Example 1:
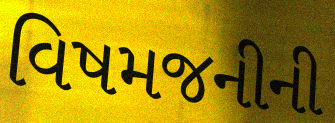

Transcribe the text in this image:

વિષમજનીની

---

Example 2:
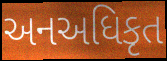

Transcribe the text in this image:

અનઅધિકૃત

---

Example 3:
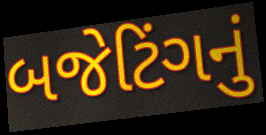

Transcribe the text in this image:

બજેટિંગનું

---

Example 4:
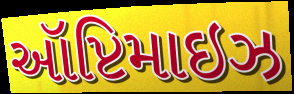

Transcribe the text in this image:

ઑપ્ટિમાઇઝ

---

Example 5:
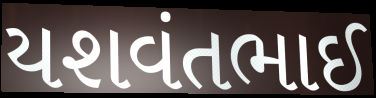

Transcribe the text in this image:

યશવંતભાઈ